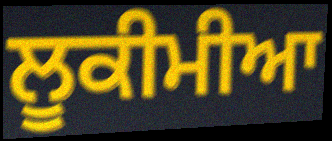
ਲੂਕੀਮੀਆ